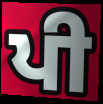
ਪੀ